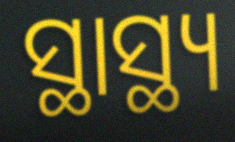
ସ୍ଥାସ୍ଥ୍ୟ